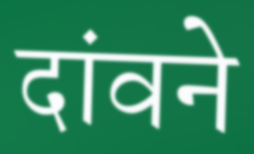
दांवने